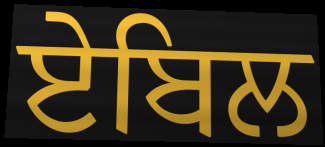
ਏਬਿਲ